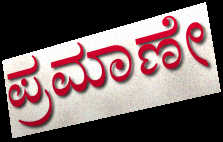
ಪ್ರಮಾಣೇ